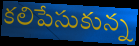
కలిపేసుకున్న